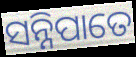
ସନ୍ନିପାତେ